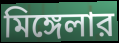
মিঙ্গেলার